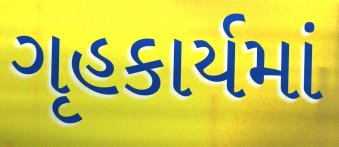
ગૃહકાર્યમાં